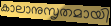
കാലാനുസൃതമായി